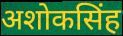
अशोकसिंह